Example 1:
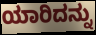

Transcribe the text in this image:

ಯಾರಿದನ್ನು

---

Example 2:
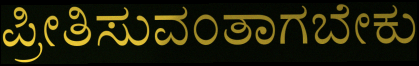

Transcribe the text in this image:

ಪ್ರೀತಿಸುವಂತಾಗಬೇಕು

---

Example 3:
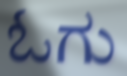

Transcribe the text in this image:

ಓಗು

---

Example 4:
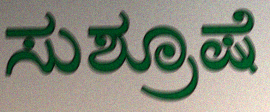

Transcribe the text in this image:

ಸುಶ್ರೂಷೆ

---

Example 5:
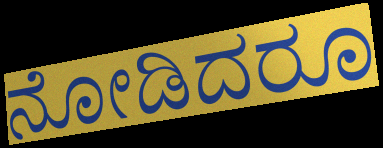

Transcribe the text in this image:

ನೋಡಿದರೂ